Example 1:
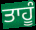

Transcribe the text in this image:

ਤਾਹੂੰ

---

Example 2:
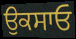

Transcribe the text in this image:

ਉਕਸਾਓ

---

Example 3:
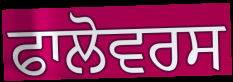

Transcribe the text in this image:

ਫਾਲੋਵਰਸ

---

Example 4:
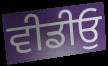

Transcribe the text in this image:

ਵੀਡੀਓੁ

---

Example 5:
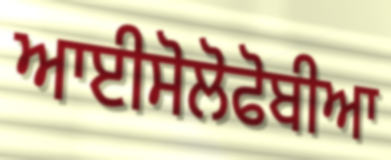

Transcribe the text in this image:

ਆਈਸੋਲੋਫੋਬੀਆ